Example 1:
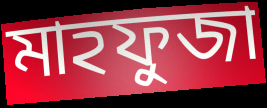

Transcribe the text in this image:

মাহফুজা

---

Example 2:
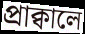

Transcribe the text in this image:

প্রাক্বালে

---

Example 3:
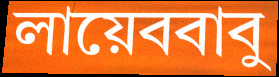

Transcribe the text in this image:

লায়েববাবু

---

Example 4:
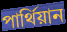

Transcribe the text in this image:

পার্থিয়ান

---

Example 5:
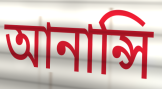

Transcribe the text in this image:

আনান্সি